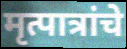
मृत्पात्रांचे